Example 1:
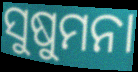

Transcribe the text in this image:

ସୁଷୁମନା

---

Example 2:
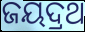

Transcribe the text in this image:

ଜୟଦ୍ରଥ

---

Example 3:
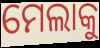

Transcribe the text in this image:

ମେଲାକୁ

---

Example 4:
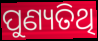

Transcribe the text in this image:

ପୁଣ୍ୟତିଥି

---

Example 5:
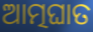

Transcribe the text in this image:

ଆତ୍ମଘାତ